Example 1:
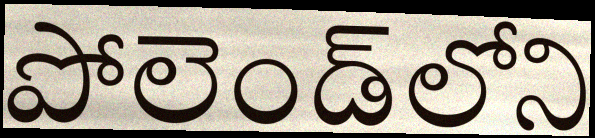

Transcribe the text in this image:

పోలెండ్‌లోని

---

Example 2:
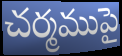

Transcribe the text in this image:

చర్మముపై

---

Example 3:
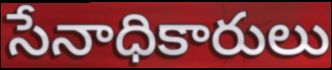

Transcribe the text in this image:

సేనాధికారులు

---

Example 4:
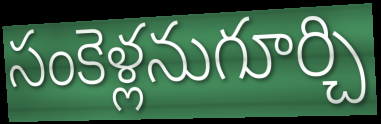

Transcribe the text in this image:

సంకెళ్లనుగూర్చి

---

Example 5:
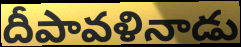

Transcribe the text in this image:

దీపావళినాడు